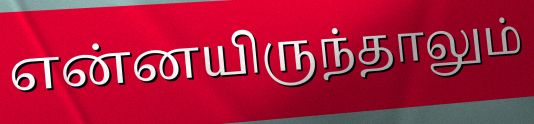
என்னயிருந்தாலும்